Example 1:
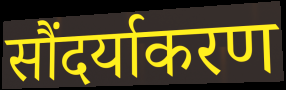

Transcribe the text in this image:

सौंदर्याकरण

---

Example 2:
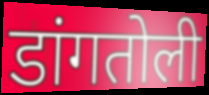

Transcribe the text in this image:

डांगतोली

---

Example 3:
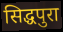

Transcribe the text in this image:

सिद्धपुरा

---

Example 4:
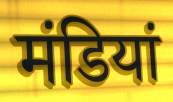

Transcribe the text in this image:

मंडियां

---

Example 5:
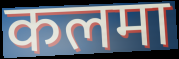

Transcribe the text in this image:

कलमा